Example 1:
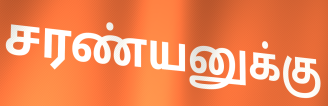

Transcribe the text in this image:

சரண்யனுக்கு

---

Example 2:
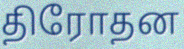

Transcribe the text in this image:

திரோதன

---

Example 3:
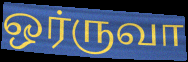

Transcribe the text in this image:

ஒர்ருவா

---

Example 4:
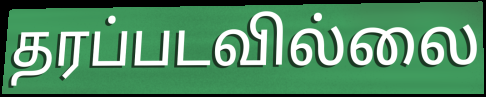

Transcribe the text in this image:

தரப்படவில்லை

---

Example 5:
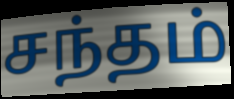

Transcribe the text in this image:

சந்தம்